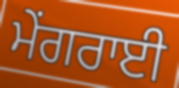
ਮੇਂਗਰਾਈ